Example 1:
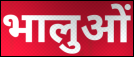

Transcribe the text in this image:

भालुओं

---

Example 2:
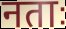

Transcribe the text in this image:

नताः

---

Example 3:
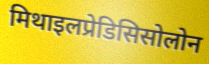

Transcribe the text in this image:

मिथाइलप्रेडिसिसोलोन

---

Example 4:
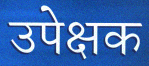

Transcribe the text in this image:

उपेक्षक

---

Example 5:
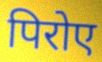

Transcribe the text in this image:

पिरोए